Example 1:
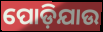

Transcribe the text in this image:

ପୋଡ଼ିଯାଉ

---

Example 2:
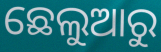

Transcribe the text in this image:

ଛେଲୁଆରୁ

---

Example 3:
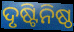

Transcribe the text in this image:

ଦୃଷ୍ଟିନିଷ୍ଠ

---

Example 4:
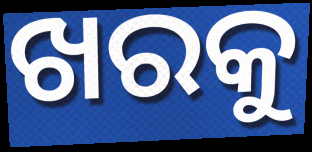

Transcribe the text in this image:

ଖରକୁ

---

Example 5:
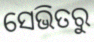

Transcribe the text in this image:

ସେଭିତରୁ